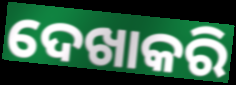
ଦେଖାକରି